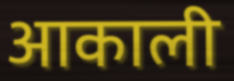
आकाली